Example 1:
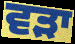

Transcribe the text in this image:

ਵੜਾ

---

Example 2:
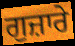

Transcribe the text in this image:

ਗੁਜ਼ਾਰੇ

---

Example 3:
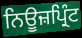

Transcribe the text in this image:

ਨਿਊਜ਼ਪ੍ਰਿੰਟ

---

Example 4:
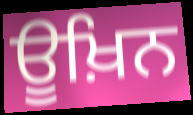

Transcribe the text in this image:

ਊਖ਼ਿਨ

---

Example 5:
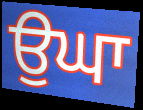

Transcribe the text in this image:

ਉਘਾ